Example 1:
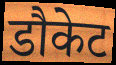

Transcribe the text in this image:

डौकेट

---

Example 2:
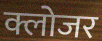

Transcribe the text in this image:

क्लोजर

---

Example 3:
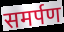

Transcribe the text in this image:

समर्पण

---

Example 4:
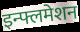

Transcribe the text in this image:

इन्फ्लमेशन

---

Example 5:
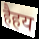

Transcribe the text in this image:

हैहय